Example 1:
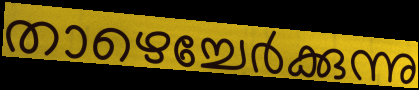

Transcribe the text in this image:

താഴെച്ചേർക്കുന്നു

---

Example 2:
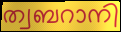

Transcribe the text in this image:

ത്വബറാനി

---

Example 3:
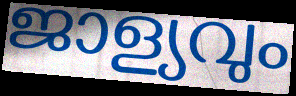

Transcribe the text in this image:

ജാള്യവും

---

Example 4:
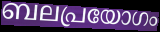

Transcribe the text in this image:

ബലപ്രയോഗം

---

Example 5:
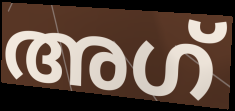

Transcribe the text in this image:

അഗ്